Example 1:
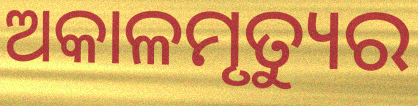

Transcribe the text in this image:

ଅକାଳମୃତ୍ୟୁର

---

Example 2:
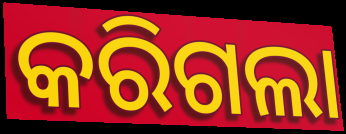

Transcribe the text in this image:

କରିଗଲା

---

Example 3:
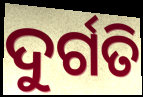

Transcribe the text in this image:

ଦୁର୍ଗତି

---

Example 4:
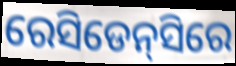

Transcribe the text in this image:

ରେସିଡେନ୍‌ସିରେ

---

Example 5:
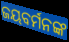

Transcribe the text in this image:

ଜୟବର୍ମନଙ୍କ